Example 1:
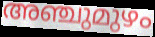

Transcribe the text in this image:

അഞ്ചുമുഴം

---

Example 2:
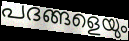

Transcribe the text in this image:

പദങ്ങളെയും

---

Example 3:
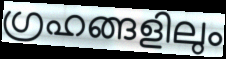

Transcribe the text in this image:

ഗ്രഹങ്ങളിലും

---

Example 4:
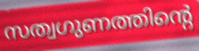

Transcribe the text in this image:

സത്വഗുണത്തിന്റെ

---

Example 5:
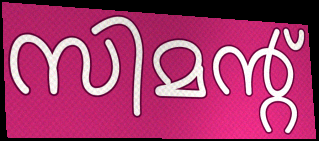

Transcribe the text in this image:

സിമന്റ്